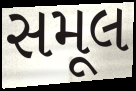
સમૂલ